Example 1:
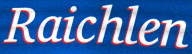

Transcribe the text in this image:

Raichlen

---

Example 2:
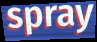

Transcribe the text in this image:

spray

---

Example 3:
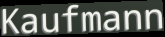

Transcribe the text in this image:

Kaufmann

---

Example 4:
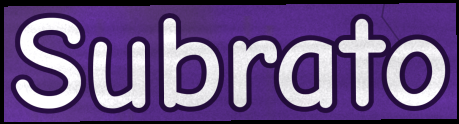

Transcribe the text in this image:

Subrato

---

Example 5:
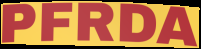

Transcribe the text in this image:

PFRDA